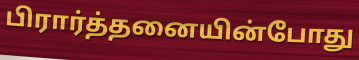
பிரார்த்தனையின்போது